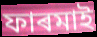
ফাৰমাই